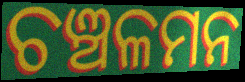
ଚଞ୍ଚଳମନ